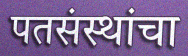
पतसंस्थांचा